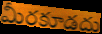
మీరకూడదు